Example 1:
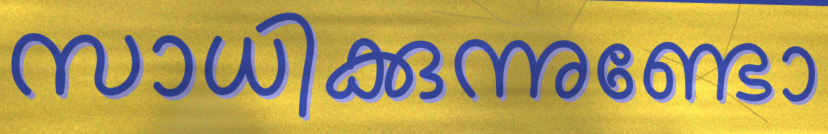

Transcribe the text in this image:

സാധിക്കുന്നുണ്ടോ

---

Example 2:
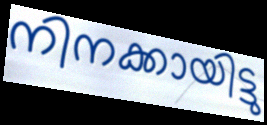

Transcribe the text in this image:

നിനക്കായിട്ടു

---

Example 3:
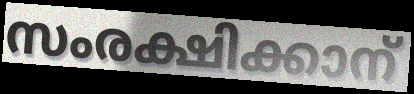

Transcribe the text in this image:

സംരക്ഷിക്കാന്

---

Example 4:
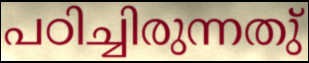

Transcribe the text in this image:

പഠിച്ചിരുന്നതു്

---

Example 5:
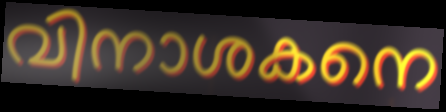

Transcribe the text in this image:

വിനാശകനെ